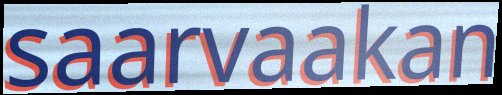
saarvaakan